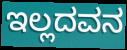
ಇಲ್ಲದವನ